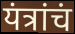
यंत्रांचं